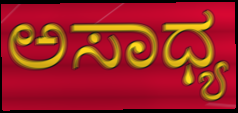
ಅಸಾಧ್ಯ